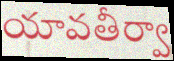
యావతీర్వా